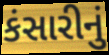
કંસારીનું